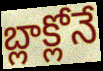
బ్లాక్లోనే